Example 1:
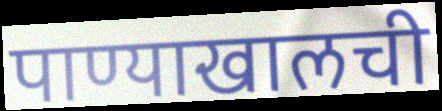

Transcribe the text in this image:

पाण्याखालची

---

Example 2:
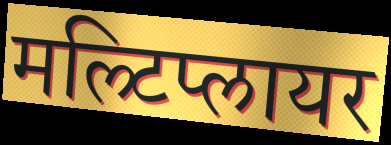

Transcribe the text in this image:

मल्टिप्लायर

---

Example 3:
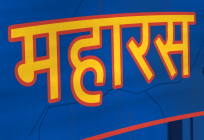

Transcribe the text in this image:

महारस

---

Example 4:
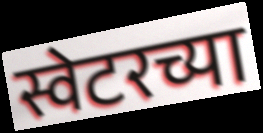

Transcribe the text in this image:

स्वेटरच्या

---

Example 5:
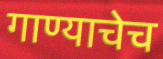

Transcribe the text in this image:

गाण्याचेच